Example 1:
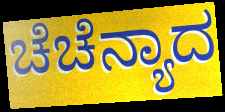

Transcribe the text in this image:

ಚೆಚೆನ್ಯಾದ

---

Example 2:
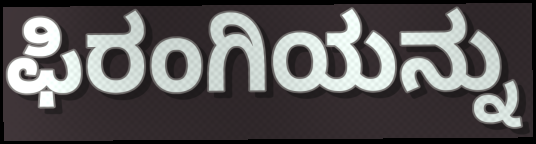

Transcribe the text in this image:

ಫಿರಂಗಿಯನ್ನು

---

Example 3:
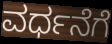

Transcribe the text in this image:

ವರ್ಧನೆಗೆ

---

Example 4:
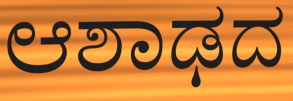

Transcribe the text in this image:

ಆಶಾಢದ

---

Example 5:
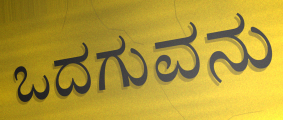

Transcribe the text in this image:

ಒದಗುವನು